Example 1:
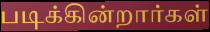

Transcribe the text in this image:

படிக்கின்றார்கள்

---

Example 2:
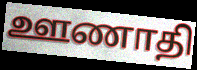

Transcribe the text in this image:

ஊணாதி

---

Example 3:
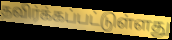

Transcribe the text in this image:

தவிர்க்கப்பட்டுள்ளது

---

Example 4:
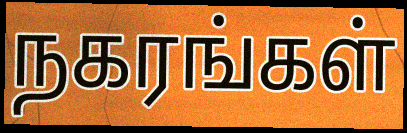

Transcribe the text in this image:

நகரங்கள்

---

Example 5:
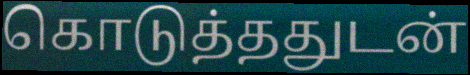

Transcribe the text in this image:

கொடுத்ததுடன்